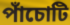
পাঁচোটি